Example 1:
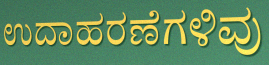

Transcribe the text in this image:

ಉದಾಹರಣೆಗಳಿವು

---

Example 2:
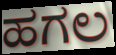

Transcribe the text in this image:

ಹಗಲ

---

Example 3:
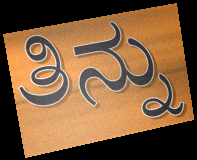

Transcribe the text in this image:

ತಿನ್ನು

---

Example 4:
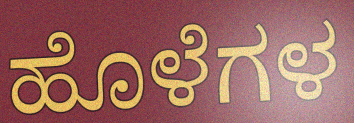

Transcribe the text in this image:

ಹೊಳೆಗಳ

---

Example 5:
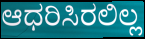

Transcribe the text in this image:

ಆಧರಿಸಿರಲಿಲ್ಲ